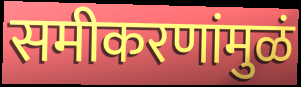
समीकरणांमुळं